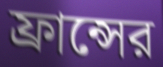
ফ্রান্সের